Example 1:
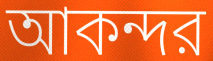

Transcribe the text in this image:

আকন্দর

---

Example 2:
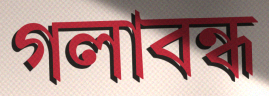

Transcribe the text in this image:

গলাবন্ধ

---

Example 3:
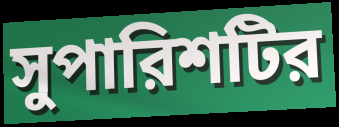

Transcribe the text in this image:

সুপারিশটির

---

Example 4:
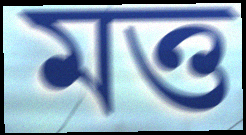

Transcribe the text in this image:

মত্ত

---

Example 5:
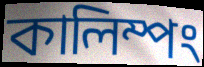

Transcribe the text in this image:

কালিম্পং